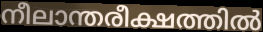
നീലാന്തരീക്ഷത്തിൽ